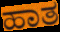
ಹಾತ